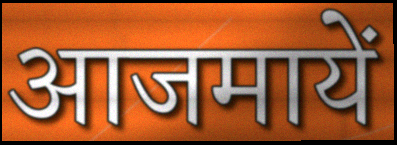
आजमायें